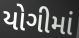
યોગીમાં